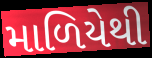
માળિયેથી